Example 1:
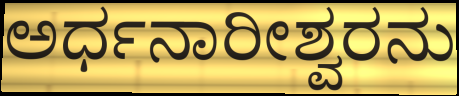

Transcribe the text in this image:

ಅರ್ಧನಾರೀಶ್ವರನು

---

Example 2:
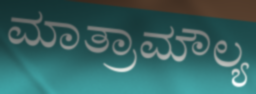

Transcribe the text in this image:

ಮಾತ್ರಾಮೌಲ್ಯ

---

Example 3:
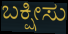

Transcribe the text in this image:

ಬಕ್ಷೀಸು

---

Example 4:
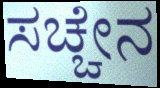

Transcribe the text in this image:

ಸಚ್ಚೇನ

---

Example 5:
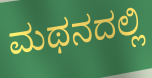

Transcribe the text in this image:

ಮಥನದಲ್ಲಿ